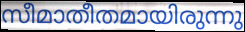
സീമാതീതമായിരുന്നു